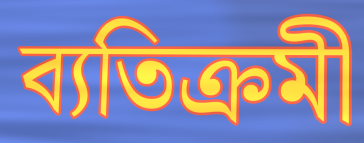
ব্যতিক্রমী